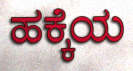
ಹಕ್ಕೆಯ